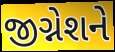
જીગ્નેશને